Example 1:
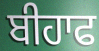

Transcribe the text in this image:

ਬੀਹਾਫ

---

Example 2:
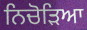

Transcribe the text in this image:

ਨਿਚੋੜਿਆ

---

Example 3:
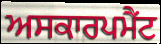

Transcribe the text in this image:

ਅਸਕਾਰਪਮੈਂਟ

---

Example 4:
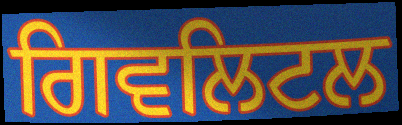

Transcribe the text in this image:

ਗਿਵਲਿਟਲ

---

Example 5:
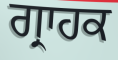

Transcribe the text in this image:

ਗ੍ਰਾਹਕ